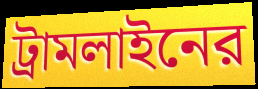
ট্রামলাইনের